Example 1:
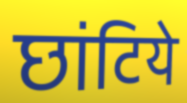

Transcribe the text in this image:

छांटिये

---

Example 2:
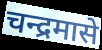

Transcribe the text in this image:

चन्द्रमासे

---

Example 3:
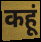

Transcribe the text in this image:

कहूं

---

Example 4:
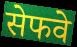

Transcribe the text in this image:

सेफवे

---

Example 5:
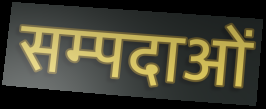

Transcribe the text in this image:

सम्पदाओं